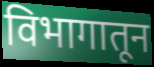
विभागातून